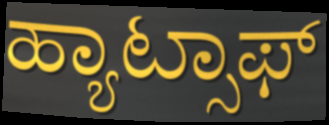
ಹ್ಯಾಟ್ಸಾಫ್